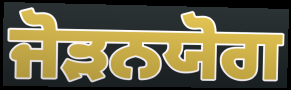
ਜੋੜਨਯੋਗ